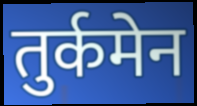
तुर्कमेन